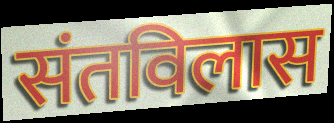
संतविलास